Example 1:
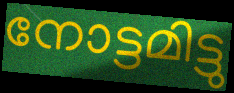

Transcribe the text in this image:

നോട്ടമിട്ടു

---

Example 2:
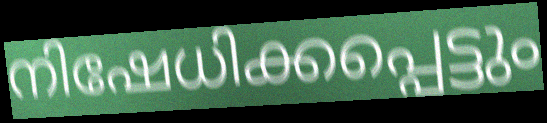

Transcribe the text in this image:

നിഷേധിക്കപ്പെട്ടും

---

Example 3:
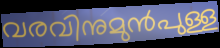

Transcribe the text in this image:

വരവിനുമുൻപുള്ള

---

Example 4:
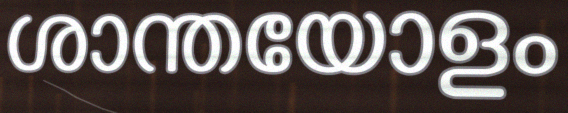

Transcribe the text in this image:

ശാന്തയോളം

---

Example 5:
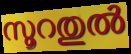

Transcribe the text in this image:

സൂറതുൽ